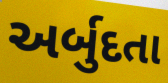
અર્બુદતા